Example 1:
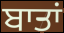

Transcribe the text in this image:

ਬਾਤਾਂ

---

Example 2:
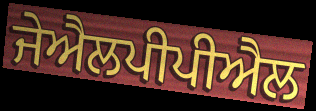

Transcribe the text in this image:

ਜੇਐਲਪੀਪੀਐਲ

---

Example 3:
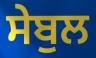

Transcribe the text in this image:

ਸੇਬੁਲ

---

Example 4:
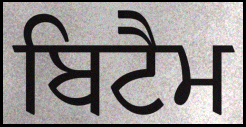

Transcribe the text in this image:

ਬਿਟੈਮ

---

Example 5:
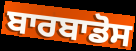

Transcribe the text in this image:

ਬਾਰਬਾਡੋਸ